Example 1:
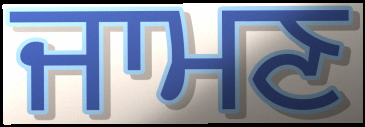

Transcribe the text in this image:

ਜਾਮਣ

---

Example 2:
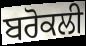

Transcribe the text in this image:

ਬਰੋਕਲੀ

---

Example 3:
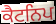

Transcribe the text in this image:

ਕੈਟਨਿਪ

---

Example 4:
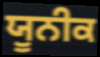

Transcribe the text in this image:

ਯੂਨੀਕ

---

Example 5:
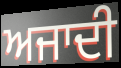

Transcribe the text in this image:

ਅਜਾਦੀ